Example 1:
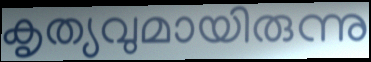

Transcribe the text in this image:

കൃത്യവുമായിരുന്നു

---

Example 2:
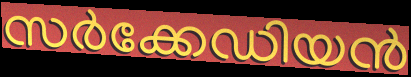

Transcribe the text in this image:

സർക്കേഡിയൻ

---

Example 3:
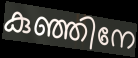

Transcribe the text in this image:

കുഞ്ഞിനേ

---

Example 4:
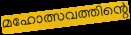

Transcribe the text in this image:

മഹോത്സവത്തിന്റെ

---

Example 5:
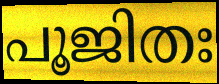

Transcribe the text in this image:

പൂജിതഃ